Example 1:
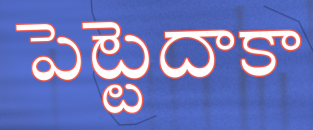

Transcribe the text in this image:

పెట్టెదాకా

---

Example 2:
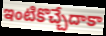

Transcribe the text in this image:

ఇంటికొచ్చేదాకా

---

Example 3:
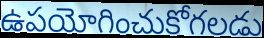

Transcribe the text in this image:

ఉపయోగించుకోగలడు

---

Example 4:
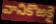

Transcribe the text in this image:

వానికొఱకై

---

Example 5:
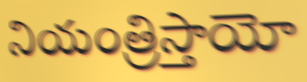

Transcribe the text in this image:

నియంత్రిస్తాయో